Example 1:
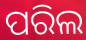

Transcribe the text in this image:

ପରିଲ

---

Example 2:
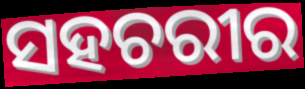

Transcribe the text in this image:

ସହଚରୀର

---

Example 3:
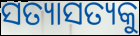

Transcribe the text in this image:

ସତ୍ୟାସତ୍ୟକୁ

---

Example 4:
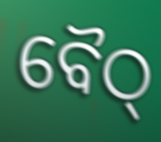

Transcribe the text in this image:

ବୈଠ୍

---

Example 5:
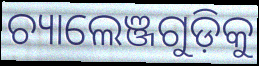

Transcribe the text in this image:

ଚ୍ୟାଲେଞ୍ଜଗୁଡ଼ିକୁ